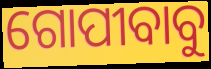
ଗୋପୀବାବୁ